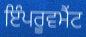
ਇੰਪਰੂਵਮੈਂਟ